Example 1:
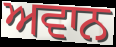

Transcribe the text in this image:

ਅਵਾਨ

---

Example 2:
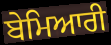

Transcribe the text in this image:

ਬੇਮਿਆਰੀ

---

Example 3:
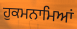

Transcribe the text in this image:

ਹੁਕਮਨਾਮਿਆਂ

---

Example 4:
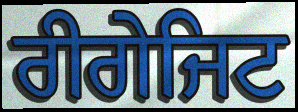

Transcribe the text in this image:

ਰੀਗੇਜਿਟ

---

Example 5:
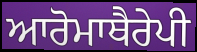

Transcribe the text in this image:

ਆਰੋਮਾਥੈਰੇਪੀ